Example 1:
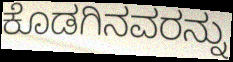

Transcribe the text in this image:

ಕೊಡಗಿನವರನ್ನು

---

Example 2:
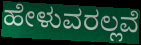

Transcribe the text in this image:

ಹೇಳುವರಲ್ಲವೆ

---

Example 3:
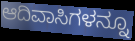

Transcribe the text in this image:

ಆದಿವಾಸಿಗಳನ್ನೂ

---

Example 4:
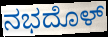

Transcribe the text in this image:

ನಭದೊಳ್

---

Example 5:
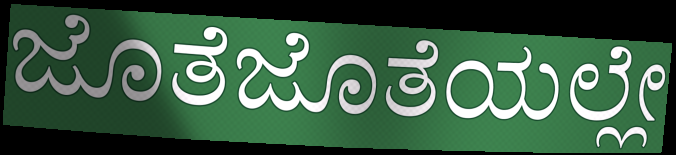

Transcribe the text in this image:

ಜೊತೆಜೊತೆಯಲ್ಲೇ